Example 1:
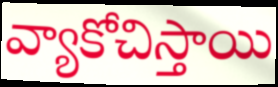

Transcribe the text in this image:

వ్యాకోచిస్తాయి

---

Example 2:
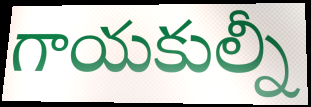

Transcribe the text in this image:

గాయకుల్నీ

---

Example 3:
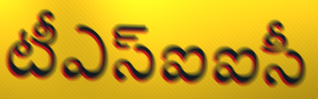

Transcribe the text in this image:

టీఎస్ఐఐసీ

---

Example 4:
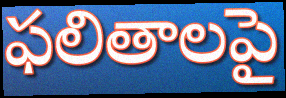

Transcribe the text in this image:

ఫలితాలపై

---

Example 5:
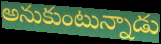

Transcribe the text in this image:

అనుకుంటున్నాడు